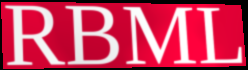
RBML